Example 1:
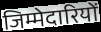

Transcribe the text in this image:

जिम्मेदारियों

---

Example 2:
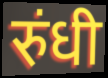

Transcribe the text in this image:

रुंधी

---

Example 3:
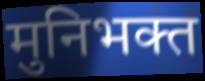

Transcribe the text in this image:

मुनिभक्त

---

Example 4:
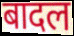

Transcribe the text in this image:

बादल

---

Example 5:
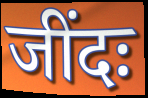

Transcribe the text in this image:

जींदः